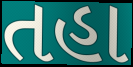
તહા